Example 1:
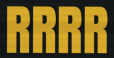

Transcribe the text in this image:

RRRR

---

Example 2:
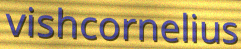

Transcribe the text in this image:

vishcornelius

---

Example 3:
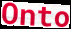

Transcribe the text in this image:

Onto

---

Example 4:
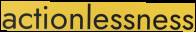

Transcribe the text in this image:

actionlessness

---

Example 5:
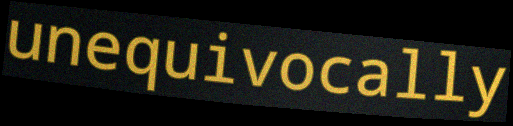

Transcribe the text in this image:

unequivocally